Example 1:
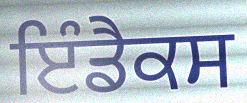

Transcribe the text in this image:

ਇੰਡੈਕਸ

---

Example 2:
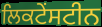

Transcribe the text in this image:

ਲਿਕਟੇਂਸਟੀਨ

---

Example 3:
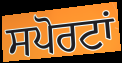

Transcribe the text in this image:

ਸਪੋਰਟਾਂ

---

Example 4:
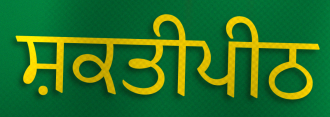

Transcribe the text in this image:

ਸ਼ਕਤੀਪੀਠ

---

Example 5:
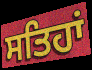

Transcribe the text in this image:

ਸਤਿਹਾਂ